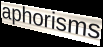
aphorisms